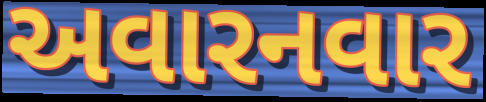
અવારનવાર